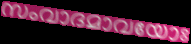
സംവാദമാവയോഃ